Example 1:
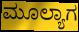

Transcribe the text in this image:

ಮೂಲ್ಯಾಗ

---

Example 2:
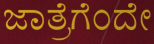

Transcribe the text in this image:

ಜಾತ್ರೆಗೆಂದೇ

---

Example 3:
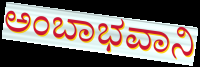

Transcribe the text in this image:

ಅಂಬಾಭವಾನಿ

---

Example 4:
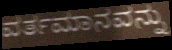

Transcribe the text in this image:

ವರ್ತಮಾನವನ್ನು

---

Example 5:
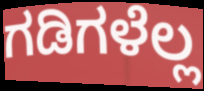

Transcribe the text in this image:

ಗಡಿಗಳೆಲ್ಲ